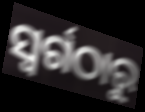
ସ୍ଵର୍ଗଠାରୁ